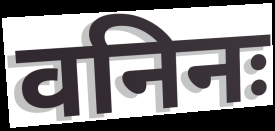
वनिनः